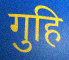
गुहि